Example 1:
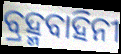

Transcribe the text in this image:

ବ୍ରହ୍ମବାହିନୀ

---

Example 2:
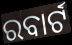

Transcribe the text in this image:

ରବାର୍ଟ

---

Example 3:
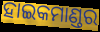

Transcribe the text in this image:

ହାଇକମାଣ୍ଡର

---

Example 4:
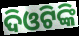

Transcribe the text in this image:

ଦିଓଟିଙ୍କି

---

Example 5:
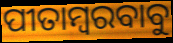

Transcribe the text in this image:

ପୀତାମ୍ବରବାବୁ